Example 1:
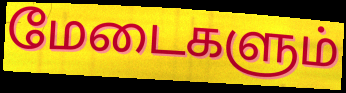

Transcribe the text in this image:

மேடைகளும்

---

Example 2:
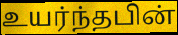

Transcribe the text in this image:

உயர்ந்தபின்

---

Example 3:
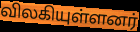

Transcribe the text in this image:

விலகியுள்ளனர்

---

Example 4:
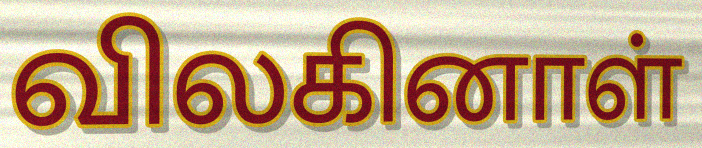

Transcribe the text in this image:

விலகினாள்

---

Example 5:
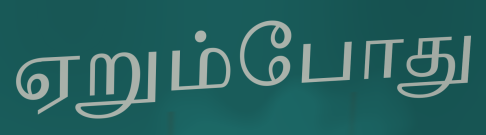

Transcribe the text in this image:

ஏறும்போது